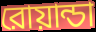
রোয়ান্ডা